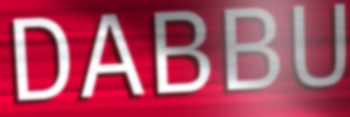
DABBU